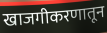
खाजगीकरणातून